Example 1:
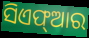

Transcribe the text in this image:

ସିଏଫ୍ଆର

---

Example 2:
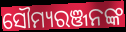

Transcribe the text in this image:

ସୌମ୍ୟରଞ୍ଜନଙ୍କ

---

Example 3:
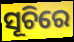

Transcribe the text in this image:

ସୂଚିରେ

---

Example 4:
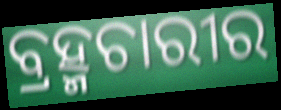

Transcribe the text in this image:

ବ୍ରହ୍ମଚାରୀର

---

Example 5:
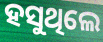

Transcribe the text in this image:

ହସୁଥିଲେ